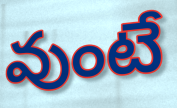
వుంటే